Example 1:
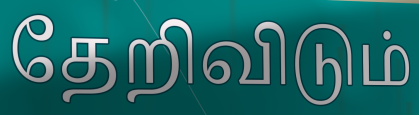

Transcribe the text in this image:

தேறிவிடும்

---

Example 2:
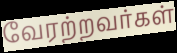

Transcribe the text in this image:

வேரற்றவர்கள்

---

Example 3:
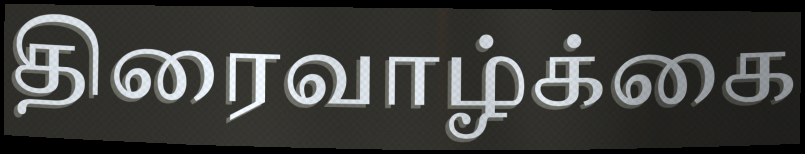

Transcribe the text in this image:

திரைவாழ்க்கை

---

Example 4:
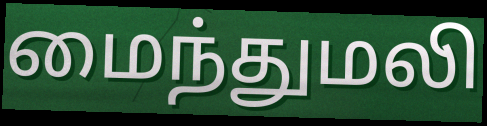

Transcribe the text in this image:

மைந்துமலி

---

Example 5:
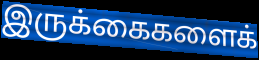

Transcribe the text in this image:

இருக்கைகளைக்